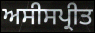
ਅਸੀਸਪ੍ਰੀਤ